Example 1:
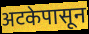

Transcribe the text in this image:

अटकेपासून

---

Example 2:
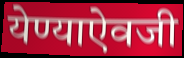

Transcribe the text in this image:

येण्याऐवजी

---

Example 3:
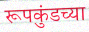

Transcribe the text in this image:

रूपकुंडच्या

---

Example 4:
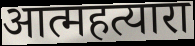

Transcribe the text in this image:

आत्महत्यारा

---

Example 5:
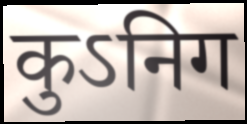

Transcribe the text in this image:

कुऽनिग